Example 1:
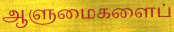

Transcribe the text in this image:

ஆளுமைகளைப்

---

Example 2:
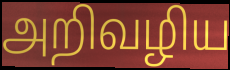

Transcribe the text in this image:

அறிவழிய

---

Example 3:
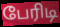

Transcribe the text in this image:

பேரிடி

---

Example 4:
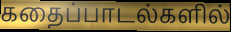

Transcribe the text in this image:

கதைப்பாடல்களில்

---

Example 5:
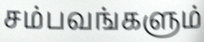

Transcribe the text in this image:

சம்பவங்களும்